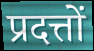
प्रदत्तों